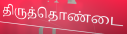
திருத்தொண்டை